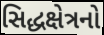
સિદ્ધક્ષેત્રનો